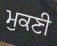
ਮੁਕਣੀ